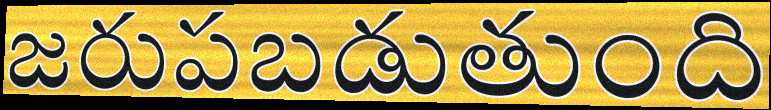
జరుపబడుతుంది